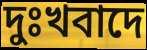
দুঃখবাদে